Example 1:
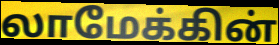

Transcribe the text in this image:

லாமேக்கின்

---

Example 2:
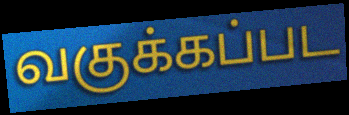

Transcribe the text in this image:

வகுக்கப்பட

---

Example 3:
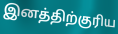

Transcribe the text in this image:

இனத்திற்குரிய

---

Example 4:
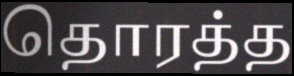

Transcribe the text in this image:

தொரத்த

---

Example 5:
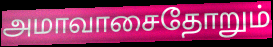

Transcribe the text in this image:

அமாவாசைதோறும்